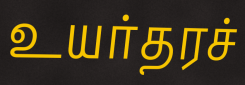
உயர்தரச்